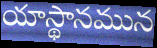
యాస్థానమున